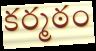
కర్మఠం